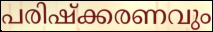
പരിഷ്ക്കരണവും